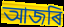
আজৰি